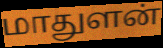
மாதுளன்